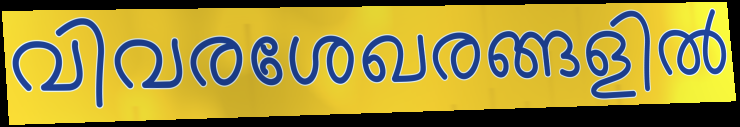
വിവരശേഖരങ്ങളിൽ